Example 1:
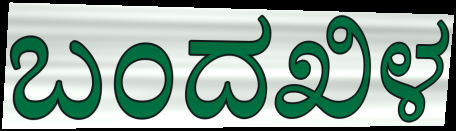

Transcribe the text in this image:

ಬಂದಖಿಳ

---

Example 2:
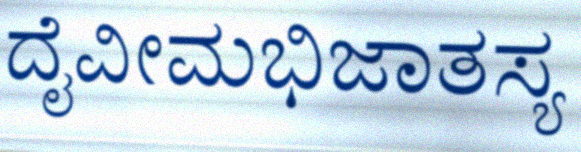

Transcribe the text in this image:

ದೈವೀಮಭಿಜಾತಸ್ಯ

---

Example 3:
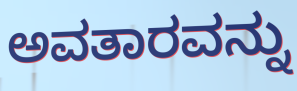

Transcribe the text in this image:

ಅವತಾರವನ್ನು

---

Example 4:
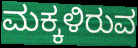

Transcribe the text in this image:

ಮಕ್ಕಳಿರುವ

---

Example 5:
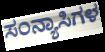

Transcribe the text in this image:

ಸಂನ್ಯಾಸಿಗಳ